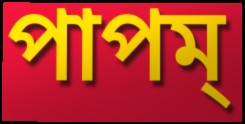
পাপম্